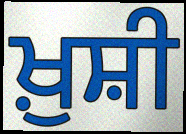
ਖ਼ੁਸ਼ੀ